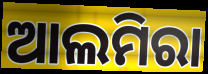
ଆଲମିରା